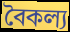
বৈকল্য